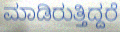
ಮಾಡಿರುತ್ತಿದ್ದರೆ